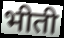
भीती